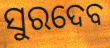
ସୁରଦେବ